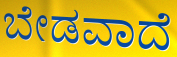
ಬೇಡವಾದೆ